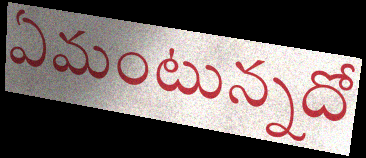
ఏమంటున్నదో